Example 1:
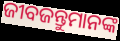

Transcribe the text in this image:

ଜୀବଜନ୍ତୁମାନଙ୍କ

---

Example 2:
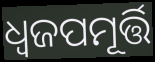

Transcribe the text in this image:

ଧ୍ୱଜପମୂର୍ତ୍ତି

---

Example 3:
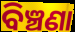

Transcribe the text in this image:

ବିଞ୍ଚଣା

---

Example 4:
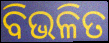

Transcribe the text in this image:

ବିଭଳିତ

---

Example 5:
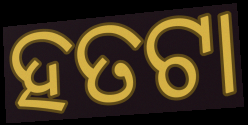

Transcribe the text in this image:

ହତଟା